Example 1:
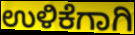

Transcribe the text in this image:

ಉಳಿಕೆಗಾಗಿ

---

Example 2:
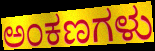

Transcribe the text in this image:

ಅಂಕಣಗಳು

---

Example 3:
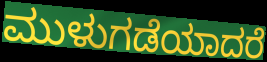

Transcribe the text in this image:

ಮುಳುಗಡೆಯಾದರೆ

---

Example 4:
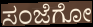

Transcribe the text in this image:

ಸಂಜೆಗೋ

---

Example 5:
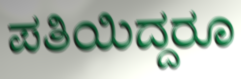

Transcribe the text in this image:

ಪತಿಯಿದ್ದರೂ